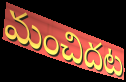
మంచిదట